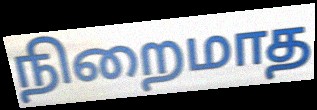
நிறைமாத